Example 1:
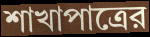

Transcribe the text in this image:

শাখাপাত্রের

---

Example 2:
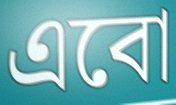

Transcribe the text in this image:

এবো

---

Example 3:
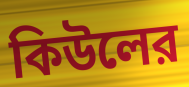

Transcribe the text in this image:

কিউলের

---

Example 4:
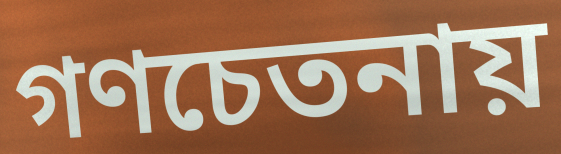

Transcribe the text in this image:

গণচেতনায়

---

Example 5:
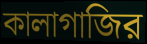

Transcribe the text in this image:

কালাগাজির